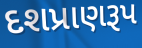
દશપ્રાણરૂપ